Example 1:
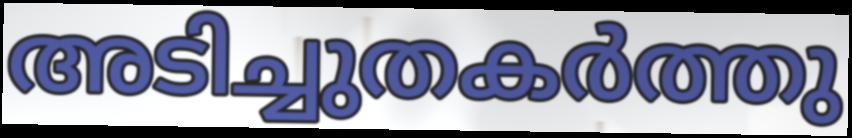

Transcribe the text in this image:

അടിച്ചുതകർത്തു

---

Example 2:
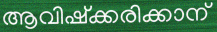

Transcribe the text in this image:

ആവിഷ്ക്കരിക്കാന്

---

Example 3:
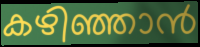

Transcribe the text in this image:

കഴിഞ്ഞാൻ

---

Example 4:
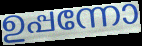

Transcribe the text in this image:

ഉപ്പന്നോ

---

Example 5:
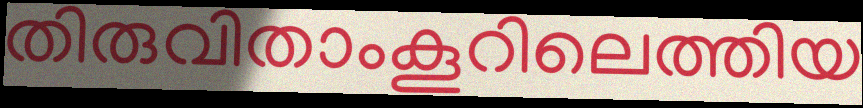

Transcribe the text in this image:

തിരുവിതാംകൂറിലെത്തിയ